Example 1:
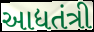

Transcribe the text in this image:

આદ્યતંત્રી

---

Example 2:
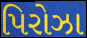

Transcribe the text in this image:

પિરોઝા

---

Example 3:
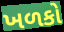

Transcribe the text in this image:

ખળકો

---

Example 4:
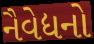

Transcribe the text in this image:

નૈવેદ્યનો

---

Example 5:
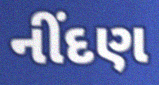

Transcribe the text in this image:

નીંદણ